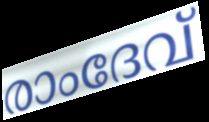
രാംദേവ്